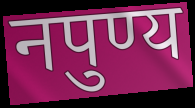
नपुण्य